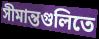
সীমান্তগুলিতে